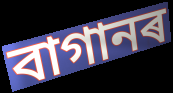
বাগানৰ